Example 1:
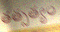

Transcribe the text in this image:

తత్సత్యం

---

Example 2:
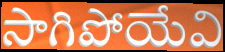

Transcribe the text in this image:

సాగిపోయేవి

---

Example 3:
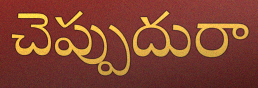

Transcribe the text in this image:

చెప్పుదురా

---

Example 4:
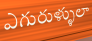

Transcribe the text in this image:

ఎగురుళ్ళులా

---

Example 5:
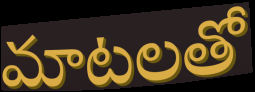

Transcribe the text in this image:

మాటలతో